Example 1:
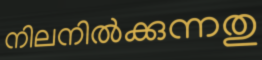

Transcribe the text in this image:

നിലനിൽക്കുന്നതു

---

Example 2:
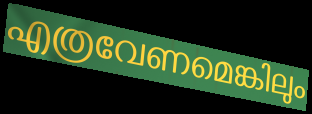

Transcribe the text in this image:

എത്രവേണമെങ്കിലും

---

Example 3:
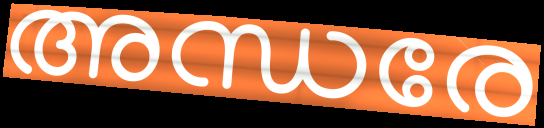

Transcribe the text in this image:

അന്ധരേ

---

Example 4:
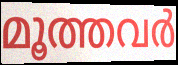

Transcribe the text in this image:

മൂത്തവർ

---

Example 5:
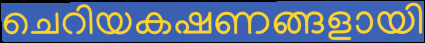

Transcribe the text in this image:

ചെറിയകഷണങ്ങളായി